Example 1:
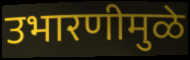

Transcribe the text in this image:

उभारणीमुळे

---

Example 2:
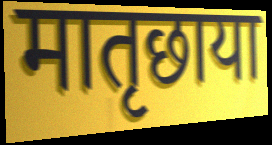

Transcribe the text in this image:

मातृछाया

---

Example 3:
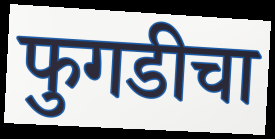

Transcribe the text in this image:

फुगडीचा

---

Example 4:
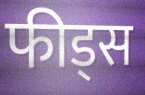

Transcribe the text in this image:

फीड्स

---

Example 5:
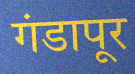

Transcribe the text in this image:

गंडापूर